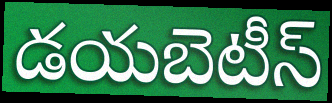
డయబెటీస్